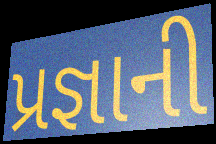
પ્રજ્ઞાની